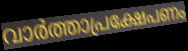
വാർത്താപ്രക്ഷേപണം